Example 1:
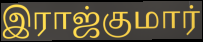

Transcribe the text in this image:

இராஜ்குமார்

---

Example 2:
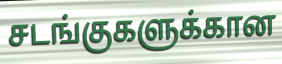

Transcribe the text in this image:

சடங்குகளுக்கான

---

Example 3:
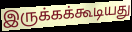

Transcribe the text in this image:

இருக்கக்கூடியது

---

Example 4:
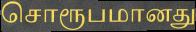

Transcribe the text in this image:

சொரூபமானது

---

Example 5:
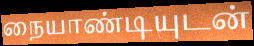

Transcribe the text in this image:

நையாண்டியுடன்